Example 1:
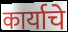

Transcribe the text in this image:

कार्याचे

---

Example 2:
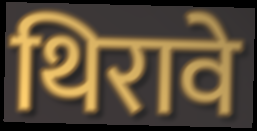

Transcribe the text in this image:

थिरावे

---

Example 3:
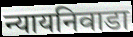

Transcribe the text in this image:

न्यायनिवाडा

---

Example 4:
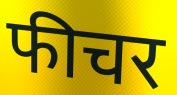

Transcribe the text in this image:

फीचर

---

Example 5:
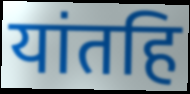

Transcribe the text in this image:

यांतहि